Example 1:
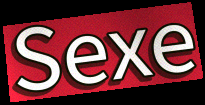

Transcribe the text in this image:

Sexe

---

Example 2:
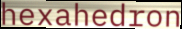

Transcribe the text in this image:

hexahedron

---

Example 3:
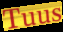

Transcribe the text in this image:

Tuus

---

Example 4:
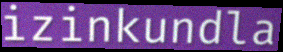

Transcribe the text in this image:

izinkundla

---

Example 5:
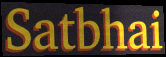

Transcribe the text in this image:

Satbhai